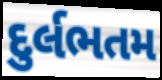
દુર્લભતમ